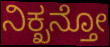
ನಿಕ್ಖನ್ತೋ